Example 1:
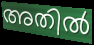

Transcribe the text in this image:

അതിൽ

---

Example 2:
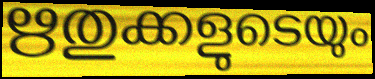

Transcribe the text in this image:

ഋതുക്കളുടെയും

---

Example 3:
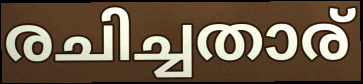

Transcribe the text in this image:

രചിച്ചതാര്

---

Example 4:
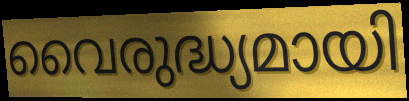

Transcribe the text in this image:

വൈരുദ്ധ്യമായി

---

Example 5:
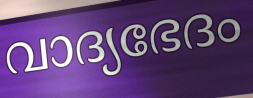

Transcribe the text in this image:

വാദ്യഭേദം